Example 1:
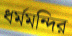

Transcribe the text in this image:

ধর্মমন্দির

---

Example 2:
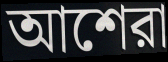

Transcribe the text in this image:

আশেরা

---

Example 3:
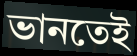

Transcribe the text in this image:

ভানতেই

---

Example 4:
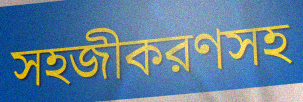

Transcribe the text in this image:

সহজীকরণসহ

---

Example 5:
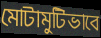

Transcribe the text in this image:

মোটামুটিভাবে